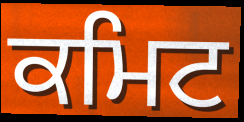
ਕਮਿਟ